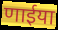
णाईया